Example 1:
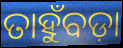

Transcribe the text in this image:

ତାହୁଁବଡ଼ା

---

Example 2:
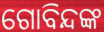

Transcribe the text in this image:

ଗୋବିନ୍ଦଙ୍କ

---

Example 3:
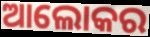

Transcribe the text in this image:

ଆଲୋକର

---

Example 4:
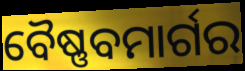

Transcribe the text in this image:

ବୈଷ୍ଣବମାର୍ଗର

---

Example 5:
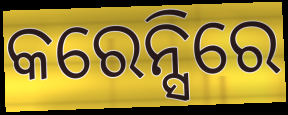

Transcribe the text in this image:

କରେନ୍ସିରେ